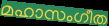
മഹാസംഗീത